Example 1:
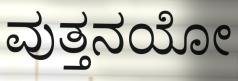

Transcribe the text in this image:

ವುತ್ತನಯೋ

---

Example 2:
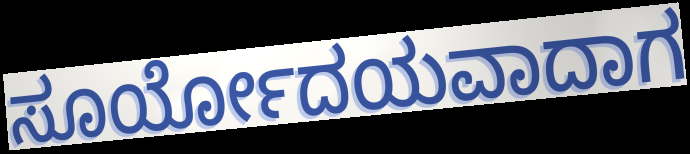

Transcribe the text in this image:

ಸೂರ್ಯೋದಯವಾದಾಗ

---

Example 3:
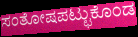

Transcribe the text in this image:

ಸಂತೋಷಪಟ್ಟುಕೊಂಡ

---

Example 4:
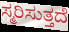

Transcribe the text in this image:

ಸ್ಮರಿಸುತ್ತದೆ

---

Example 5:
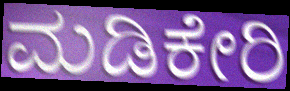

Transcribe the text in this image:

ಮಡಿಕೇರಿ